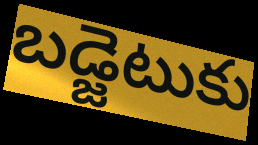
బడ్జెటుకు